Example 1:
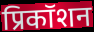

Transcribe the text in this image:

प्रिकॉशन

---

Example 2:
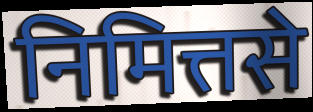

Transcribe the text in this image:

निमित्तसे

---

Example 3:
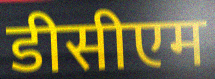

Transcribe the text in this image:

डीसीएम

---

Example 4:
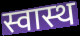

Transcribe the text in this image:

स्वास्थ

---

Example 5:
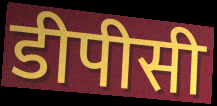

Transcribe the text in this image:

डीपीसी